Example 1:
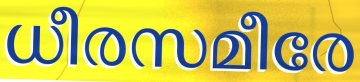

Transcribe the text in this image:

ധീരസമീരേ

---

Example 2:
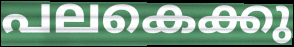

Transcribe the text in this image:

പലകെക്കു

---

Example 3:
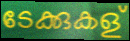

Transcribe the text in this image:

ടേക്കുകള്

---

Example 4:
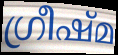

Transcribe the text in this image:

ഗ്രീഷ്മ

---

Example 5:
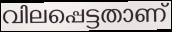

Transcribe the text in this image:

വിലപ്പെട്ടതാണ്